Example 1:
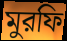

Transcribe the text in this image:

মুরফি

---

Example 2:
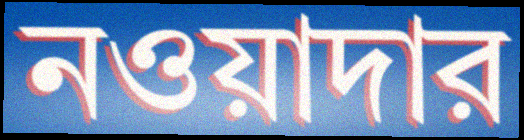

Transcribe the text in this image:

নওয়াদার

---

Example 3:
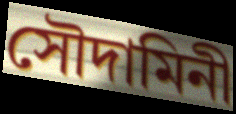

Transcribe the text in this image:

সৌদামিনী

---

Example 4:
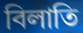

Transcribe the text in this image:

বিলাতি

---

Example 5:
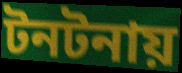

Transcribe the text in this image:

টনটনায়